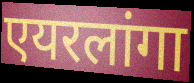
एयरलांगा